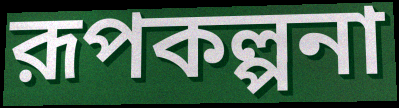
রূপকল্পনা